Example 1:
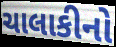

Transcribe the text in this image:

ચાલાકીનો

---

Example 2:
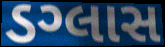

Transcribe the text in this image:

ડગ્લાસ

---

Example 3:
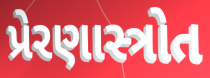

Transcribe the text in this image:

પ્રેરણાસ્ત્રોત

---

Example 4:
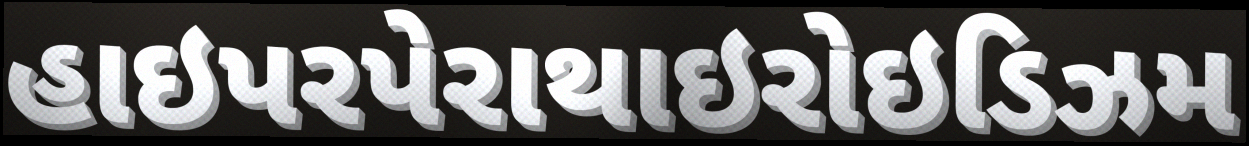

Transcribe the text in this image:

હાઇપરપેરાથાઇરોઇડિઝમ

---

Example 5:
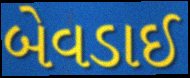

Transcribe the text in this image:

બેવડાઈ